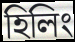
হিলিং